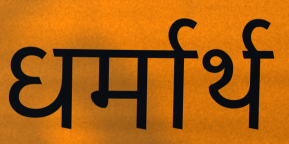
धर्मार्थ